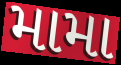
મામા